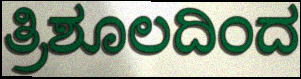
ತ್ರಿಶೂಲದಿಂದ